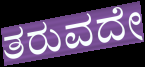
ತರುವದೇ